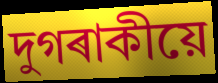
দুগৰাকীয়ে